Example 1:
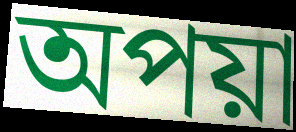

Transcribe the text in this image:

অপয়া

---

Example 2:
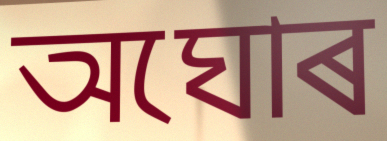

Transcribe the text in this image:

অঘোৰ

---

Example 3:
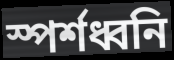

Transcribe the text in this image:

স্পৰ্শধ্বনি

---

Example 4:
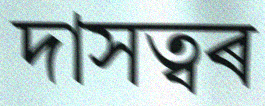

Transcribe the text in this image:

দাসত্বৰ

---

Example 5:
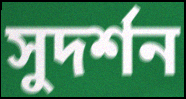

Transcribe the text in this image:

সুদৰ্শন